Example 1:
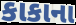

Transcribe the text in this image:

કાકાના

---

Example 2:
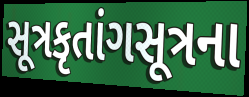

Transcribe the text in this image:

સૂત્રકૃતાંગસૂત્રના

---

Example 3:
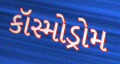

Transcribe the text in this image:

કૉસ્મોડ્રોમ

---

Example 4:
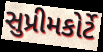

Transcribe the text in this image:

સુપ્રીમકોર્ટે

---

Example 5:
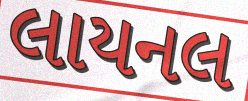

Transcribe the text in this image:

લાયનલ